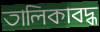
তালিকাবদ্ধ